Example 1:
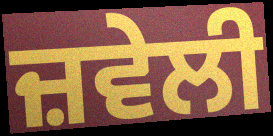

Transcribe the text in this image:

ਜ਼ਵੇਲੀ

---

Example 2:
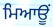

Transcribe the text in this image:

ਮਿਆਊਂ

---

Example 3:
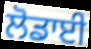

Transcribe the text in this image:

ਲੋਡਾਈ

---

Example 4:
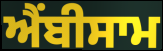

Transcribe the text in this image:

ਐਂਬੀਸਾਮ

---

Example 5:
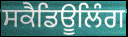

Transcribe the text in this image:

ਸਕੈਡਿਊਲਿੰਗ